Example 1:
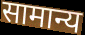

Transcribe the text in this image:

सामान्य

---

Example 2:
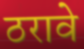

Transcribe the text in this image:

ठरावे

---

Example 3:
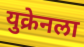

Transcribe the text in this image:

युक्रेनला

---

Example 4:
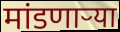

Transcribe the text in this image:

मांडणाऱ्या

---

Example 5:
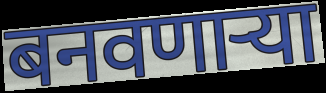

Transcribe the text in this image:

बनवणाऱ्या